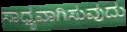
ಸಾಧ್ಯವಾಗಿಸುವುದು